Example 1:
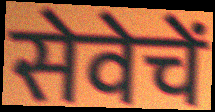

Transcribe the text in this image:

सेवेचें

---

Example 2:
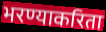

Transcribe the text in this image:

भरण्याकरिता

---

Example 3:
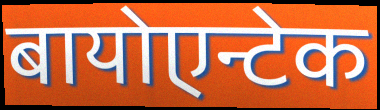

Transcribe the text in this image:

बायोएन्टेक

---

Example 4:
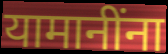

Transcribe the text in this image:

यामानींना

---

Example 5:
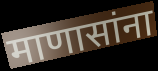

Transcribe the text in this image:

माणासांना